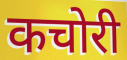
कचोरी